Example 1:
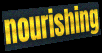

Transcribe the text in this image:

nourishing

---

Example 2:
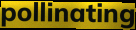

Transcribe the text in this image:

pollinating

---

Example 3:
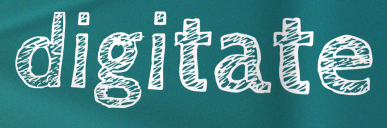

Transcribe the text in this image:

digitate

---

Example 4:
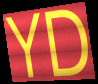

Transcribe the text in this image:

YD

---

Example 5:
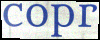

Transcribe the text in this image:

copr